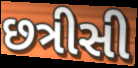
છત્રીસી